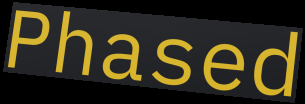
Phased